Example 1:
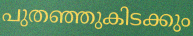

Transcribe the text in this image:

പുതഞ്ഞുകിടക്കും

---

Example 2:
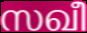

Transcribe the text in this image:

സഖീ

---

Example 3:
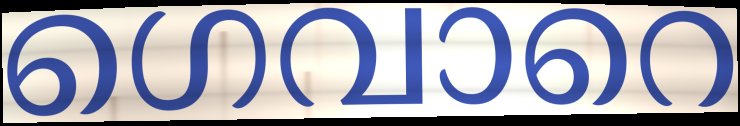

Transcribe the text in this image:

ഗെവാറെ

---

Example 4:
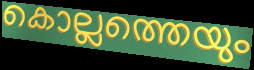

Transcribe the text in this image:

കൊല്ലത്തെയും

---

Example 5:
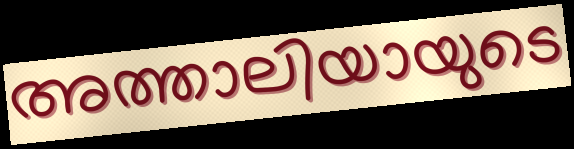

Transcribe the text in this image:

അത്താലിയായുടെ